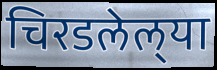
चिरडलेल्या